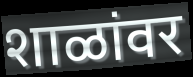
शाळांवर